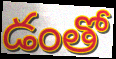
డంతో